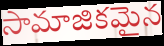
సామాజికమైన